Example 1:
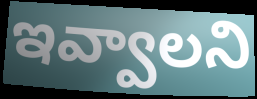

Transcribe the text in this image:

ఇవ్వాలని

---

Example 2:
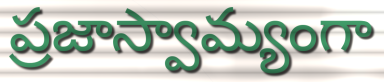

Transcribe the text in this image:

ప్రజాస్వామ్యంగా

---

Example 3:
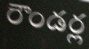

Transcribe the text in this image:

రౌండర్ల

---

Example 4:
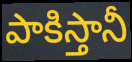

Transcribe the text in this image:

పాకిస్తానీ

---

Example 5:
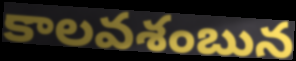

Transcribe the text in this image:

కాలవశంబున